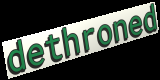
dethroned